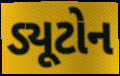
ડ્યૂટોન